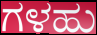
ಗಳಹು